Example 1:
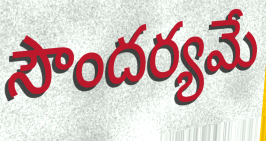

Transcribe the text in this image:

సౌందర్యమే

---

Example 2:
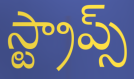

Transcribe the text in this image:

స్ట్రాప్స్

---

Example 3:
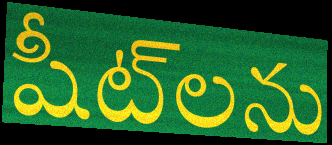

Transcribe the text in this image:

షీట్‌లను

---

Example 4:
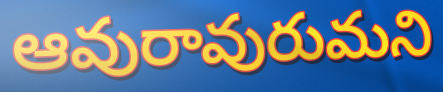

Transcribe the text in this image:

ఆవురావురుమని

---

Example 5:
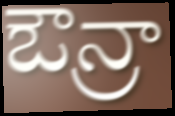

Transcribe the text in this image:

ఔన్రా